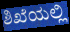
ಶಿಖೆಯಲ್ಲಿ